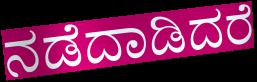
ನಡೆದಾಡಿದರೆ